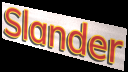
Slander